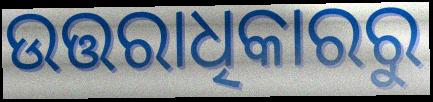
ଉତ୍ତରାଧିକାରରୁ